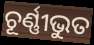
ଚୂର୍ଣ୍ଣୀଭୁତ